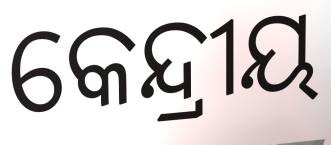
କେନ୍ଦ୍ରୀୟ